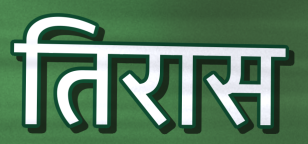
तिरास